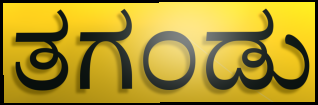
ತಗಂಡು